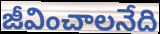
జీవించాలనేది